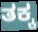
ತಕ್ಕ